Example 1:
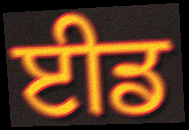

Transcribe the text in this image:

ਈਡ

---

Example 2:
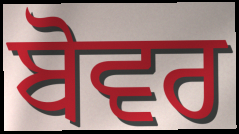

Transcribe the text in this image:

ਬੋਵਰ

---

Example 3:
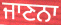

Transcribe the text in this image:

ਜਾਣਨਾ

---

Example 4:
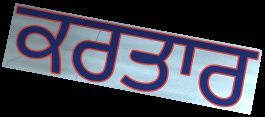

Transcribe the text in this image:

ਕਰਤਾਰ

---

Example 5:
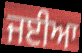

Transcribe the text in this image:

ਜਈਆ